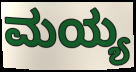
ಮಯ್ಯ